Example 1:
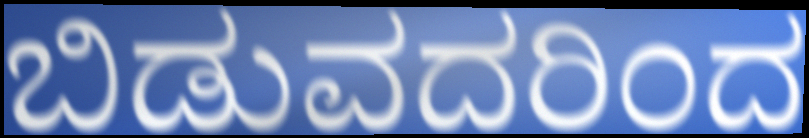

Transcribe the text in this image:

ಬಿಡುವದರಿಂದ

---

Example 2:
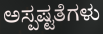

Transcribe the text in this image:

ಅಸ್ಪಷ್ಟತೆಗಳು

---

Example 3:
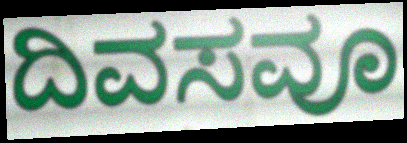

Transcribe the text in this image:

ದಿವಸವೂ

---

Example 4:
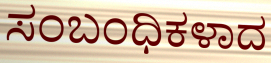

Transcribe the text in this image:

ಸಂಬಂಧಿಕಳಾದ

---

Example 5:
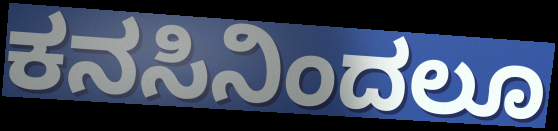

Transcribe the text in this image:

ಕನಸಿನಿಂದಲೂ